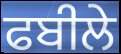
ਫਬੀਲੇ